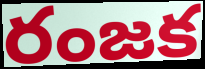
రంజక